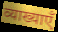
व्याख्याएँ